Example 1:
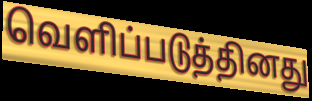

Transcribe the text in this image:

வெளிப்படுத்தினது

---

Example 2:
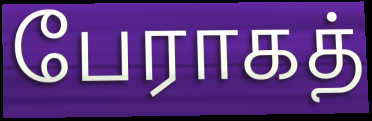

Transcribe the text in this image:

பேராகத்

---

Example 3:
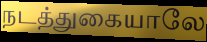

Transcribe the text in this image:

நடத்துகையாலே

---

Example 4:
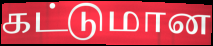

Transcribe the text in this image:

கட்டுமான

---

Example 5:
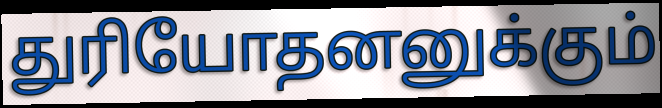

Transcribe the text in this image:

துரியோதனனுக்கும்